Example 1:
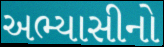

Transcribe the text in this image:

અભ્યાસીનો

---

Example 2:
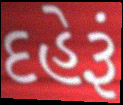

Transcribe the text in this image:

દહેરૂં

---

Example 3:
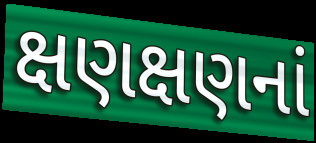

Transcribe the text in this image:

ક્ષણક્ષણનાં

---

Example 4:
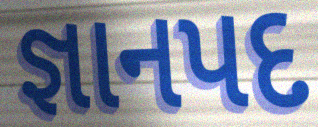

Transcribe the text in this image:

જ્ઞાનપદ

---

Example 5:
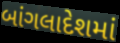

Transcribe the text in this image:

બાંગલાદેશમાં